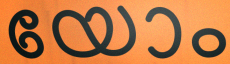
യോം